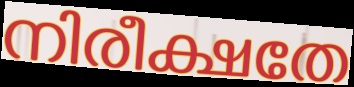
നിരീക്ഷതേ